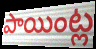
పాయింట్ల